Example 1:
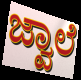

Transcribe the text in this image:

ಜ್ವಾಲೆ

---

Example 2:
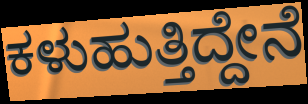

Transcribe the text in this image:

ಕಳುಹುತ್ತಿದ್ದೇನೆ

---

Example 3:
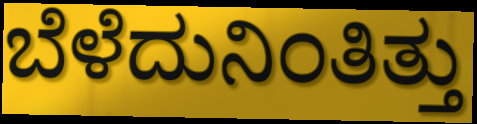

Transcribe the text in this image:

ಬೆಳೆದುನಿಂತಿತ್ತು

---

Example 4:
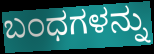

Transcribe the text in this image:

ಬಂಧಗಳನ್ನು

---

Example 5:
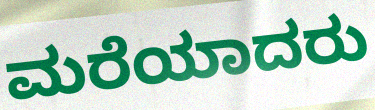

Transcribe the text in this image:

ಮರೆಯಾದರು